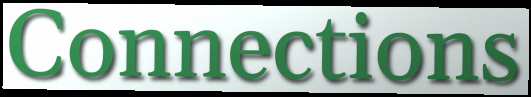
Connections